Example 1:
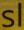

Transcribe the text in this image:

sl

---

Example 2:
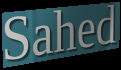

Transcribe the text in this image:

Sahed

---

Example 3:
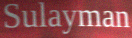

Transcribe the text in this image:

Sulayman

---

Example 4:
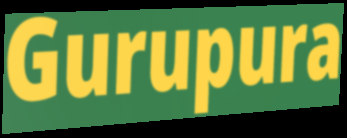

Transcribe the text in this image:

Gurupura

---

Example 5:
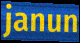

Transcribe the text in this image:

janun